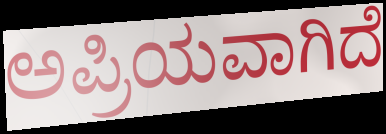
ಅಪ್ರಿಯವಾಗಿದೆ